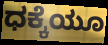
ಧಕ್ಕೆಯೂ